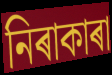
নিৰাকাৰা